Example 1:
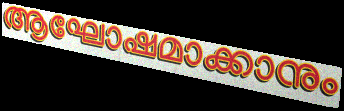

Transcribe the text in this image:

ആഘോഷമാക്കാനും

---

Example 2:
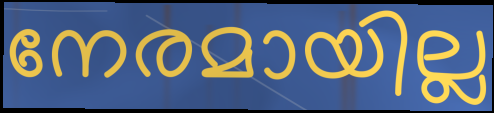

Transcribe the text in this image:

നേരമായില്ല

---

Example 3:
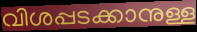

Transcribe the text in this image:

വിശപ്പടക്കാനുള്ള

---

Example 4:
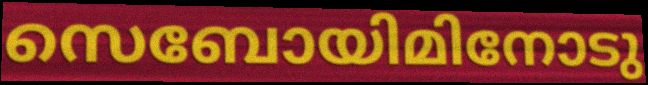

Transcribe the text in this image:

സെബോയിമിനോടു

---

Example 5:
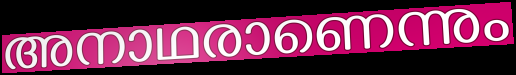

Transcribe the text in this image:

അനാഥരാണെന്നും